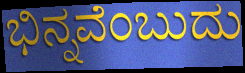
ಭಿನ್ನವೆಂಬುದು